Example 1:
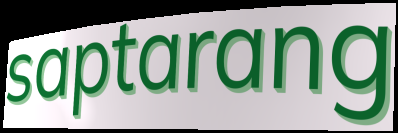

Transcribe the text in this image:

saptarang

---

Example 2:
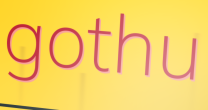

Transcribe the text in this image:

gothu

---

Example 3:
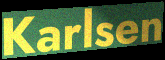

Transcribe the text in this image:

Karlsen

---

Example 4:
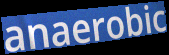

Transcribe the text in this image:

anaerobic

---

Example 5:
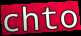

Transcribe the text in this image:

chto